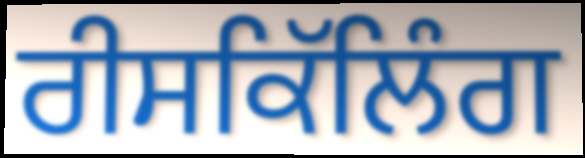
ਰੀਸਕਿੱਲਿੰਗ